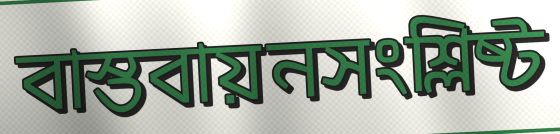
বাস্তবায়নসংশ্লিষ্ট